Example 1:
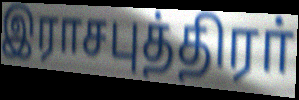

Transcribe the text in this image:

இராசபுத்திரர்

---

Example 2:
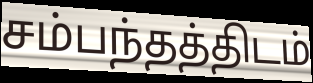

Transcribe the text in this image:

சம்பந்தத்திடம்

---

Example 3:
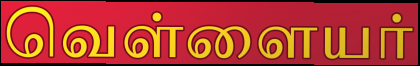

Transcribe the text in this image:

வெள்ளையர்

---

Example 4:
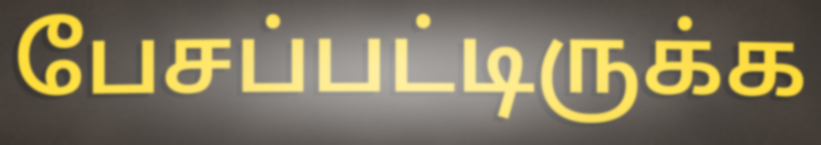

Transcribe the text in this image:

பேசப்பட்டிருக்க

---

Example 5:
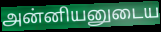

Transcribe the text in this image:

அன்னியனுடைய